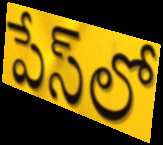
పేస్‌లో